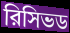
রিসিভড